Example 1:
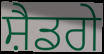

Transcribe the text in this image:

ਸ਼ੈਡਗੇ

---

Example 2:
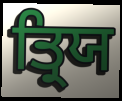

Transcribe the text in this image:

ਤ੍ਰਿਯ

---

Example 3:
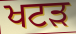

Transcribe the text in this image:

ਖਟੜ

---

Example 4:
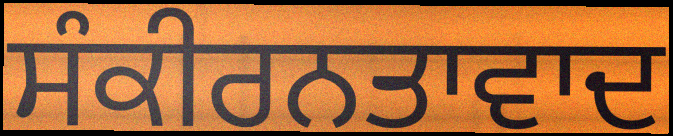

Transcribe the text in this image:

ਸੰਕੀਰਨਤਾਵਾਦ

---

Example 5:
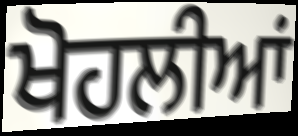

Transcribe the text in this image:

ਖੋਹਲੀਆਂ